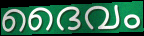
ദൈവം